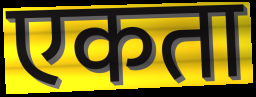
एकता